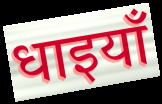
धाइयाँ